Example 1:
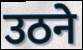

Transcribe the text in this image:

उठने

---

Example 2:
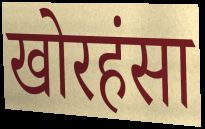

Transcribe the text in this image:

खोरहंसा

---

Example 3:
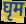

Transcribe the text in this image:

घृम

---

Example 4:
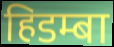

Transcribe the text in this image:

हिडम्बा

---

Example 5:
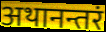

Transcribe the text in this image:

अथानन्तरं